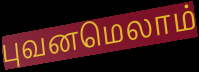
புவனமெலாம்